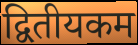
द्वितीयकम